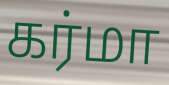
கர்மா